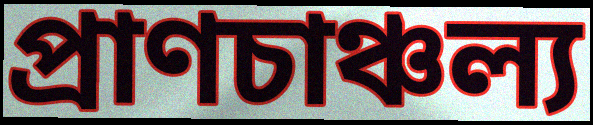
প্রাণচাঞ্চল্য